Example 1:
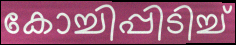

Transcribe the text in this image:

കോച്ചിപ്പിടിച്ച്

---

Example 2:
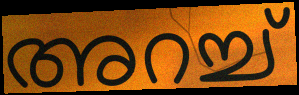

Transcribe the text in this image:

അറച്ച്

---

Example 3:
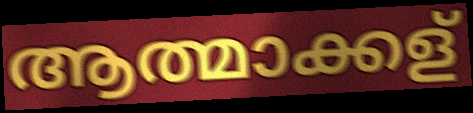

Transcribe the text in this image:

ആത്മാക്കള്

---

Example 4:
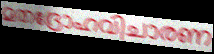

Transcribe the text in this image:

മതദ്രോഹവിചാരണ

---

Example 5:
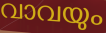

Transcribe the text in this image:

വാവയും